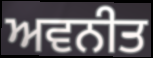
ਅਵਨੀਤ